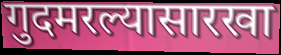
गुदमरल्यासारखा